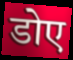
डोए